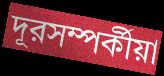
দূরসম্পর্কীয়া